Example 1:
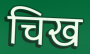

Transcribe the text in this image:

चिख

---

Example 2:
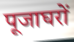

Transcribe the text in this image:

पूजाघरों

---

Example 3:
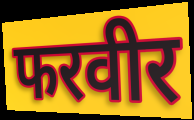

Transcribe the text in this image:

फरवीर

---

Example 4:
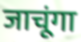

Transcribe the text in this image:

जाचूंगा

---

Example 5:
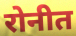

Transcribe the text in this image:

रोनीत